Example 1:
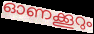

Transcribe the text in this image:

ഓണക്കൂറും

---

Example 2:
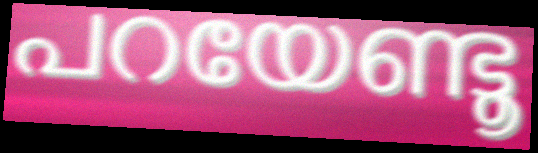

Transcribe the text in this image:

പറയേണ്ടൂ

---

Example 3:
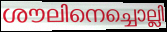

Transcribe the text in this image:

ശൗലിനെച്ചൊല്ലി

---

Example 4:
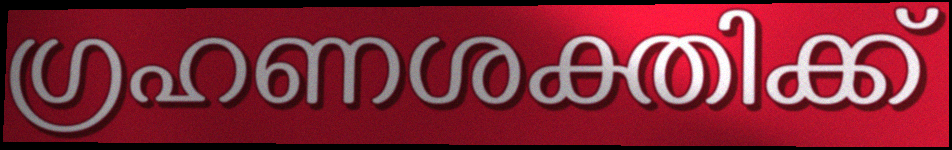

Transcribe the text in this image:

ഗ്രഹണശക്തിക്ക്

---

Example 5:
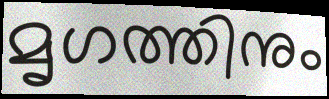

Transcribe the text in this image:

മൃഗത്തിനും